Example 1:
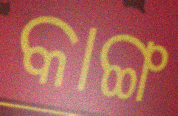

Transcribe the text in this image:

କାଙ୍ଗ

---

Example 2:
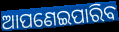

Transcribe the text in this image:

ଆପଣେଇପାରିବ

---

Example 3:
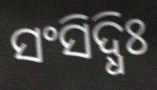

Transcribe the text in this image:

ସଂସିଦ୍ଧିଃ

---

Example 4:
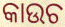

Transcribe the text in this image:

କାଉଚ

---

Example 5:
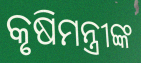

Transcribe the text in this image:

କୃଷିମନ୍ତ୍ରୀଙ୍କ